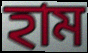
হাম